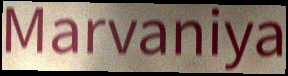
Marvaniya